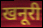
खनूरी